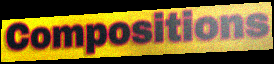
Compositions